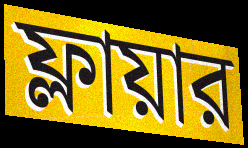
ফ্লায়ার